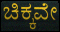
ಚಿಕ್ಕವೇ